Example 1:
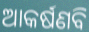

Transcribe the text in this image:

ଆକର୍ଷଣବି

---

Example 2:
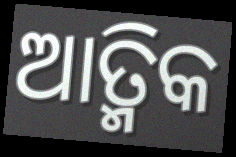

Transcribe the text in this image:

ଆତ୍ମିକ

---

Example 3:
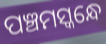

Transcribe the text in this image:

ପଞ୍ଚମସ୍କନ୍ଧେ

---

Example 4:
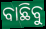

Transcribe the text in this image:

ବାଛିବୁ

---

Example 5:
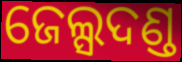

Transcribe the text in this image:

ଜେଲ୍ସଦଣ୍ଡ